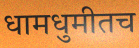
धामधुमीतच